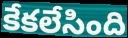
కేకలేసింది